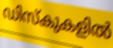
ഡിസ്കുകളിൽ